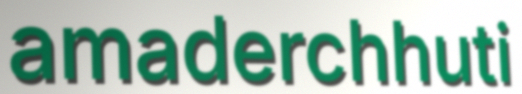
amaderchhuti